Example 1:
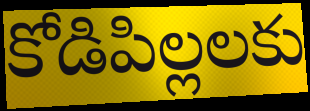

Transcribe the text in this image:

కోడిపిల్లలకు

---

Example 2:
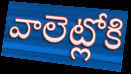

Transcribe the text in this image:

వాలెట్లోకి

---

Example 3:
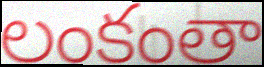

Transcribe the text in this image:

లంకంతా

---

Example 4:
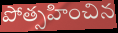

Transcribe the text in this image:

పోత్సహించిన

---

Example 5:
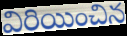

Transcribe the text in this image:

విరియించిన